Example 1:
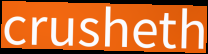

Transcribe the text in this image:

crusheth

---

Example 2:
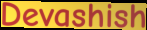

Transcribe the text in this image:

Devashish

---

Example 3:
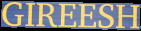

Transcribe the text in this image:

GIREESH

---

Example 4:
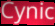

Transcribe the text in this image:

Cynic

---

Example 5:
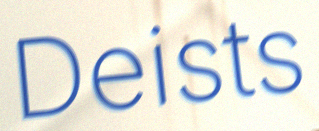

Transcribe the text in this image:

Deists